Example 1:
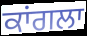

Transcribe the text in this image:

ਕਾਂਗਲਾ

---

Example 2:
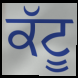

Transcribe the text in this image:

ਕੱਟੂ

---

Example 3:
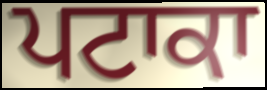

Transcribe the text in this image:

ਪਟਾਕਾ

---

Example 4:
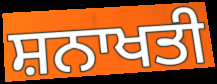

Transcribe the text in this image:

ਸ਼ਨਾਖਤੀ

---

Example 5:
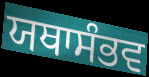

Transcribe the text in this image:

ਯਥਾਸੰਭਵ